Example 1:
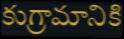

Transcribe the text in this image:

కుగ్రామానికి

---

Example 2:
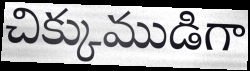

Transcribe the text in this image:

చిక్కుముడిగా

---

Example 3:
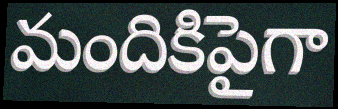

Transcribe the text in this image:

మందికిపైగా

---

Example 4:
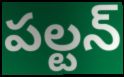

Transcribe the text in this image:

పల్టన్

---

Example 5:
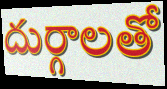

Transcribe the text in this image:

దుర్గాలతో